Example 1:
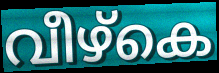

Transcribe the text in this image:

വീഴ്കെ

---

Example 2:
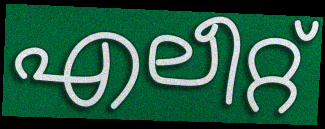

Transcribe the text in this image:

എലീറ്റ്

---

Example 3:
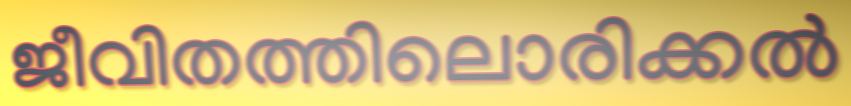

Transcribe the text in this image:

ജീവിതത്തിലൊരിക്കൽ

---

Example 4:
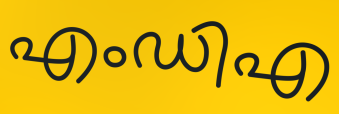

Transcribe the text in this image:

എംഡിഎ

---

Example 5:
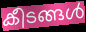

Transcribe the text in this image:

കീടങ്ങൾ